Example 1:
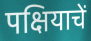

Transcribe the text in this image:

पक्षियाचें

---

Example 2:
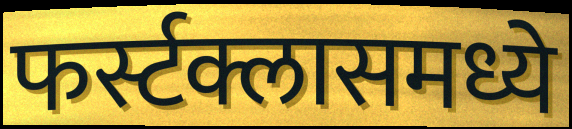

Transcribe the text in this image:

फर्स्टक्लासमध्ये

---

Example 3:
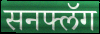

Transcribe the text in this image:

सनफ्लॅग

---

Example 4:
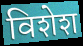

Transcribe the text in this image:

विशेश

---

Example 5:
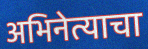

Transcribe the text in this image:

अभिनेत्याचा